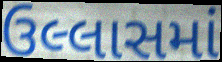
ઉલ્લાસમાં